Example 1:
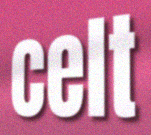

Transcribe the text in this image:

celt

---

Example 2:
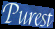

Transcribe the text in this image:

Purest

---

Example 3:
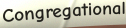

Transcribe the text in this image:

Congregational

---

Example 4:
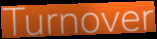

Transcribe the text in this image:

Turnover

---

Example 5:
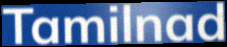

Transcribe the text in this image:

Tamilnad